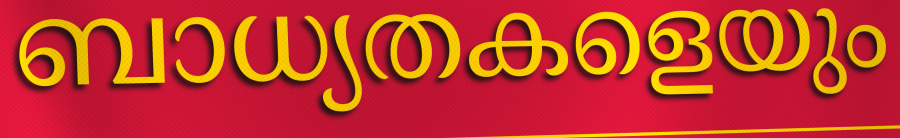
ബാധ്യതകളെയും